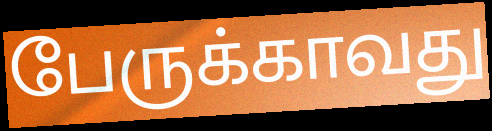
பேருக்காவது